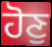
ਹੋਣੁ